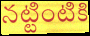
నట్టింటికి